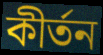
কীৰ্তন